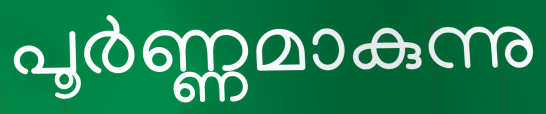
പൂർണ്ണമാകുന്നു